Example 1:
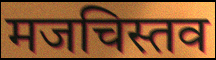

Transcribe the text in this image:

मजचिस्तव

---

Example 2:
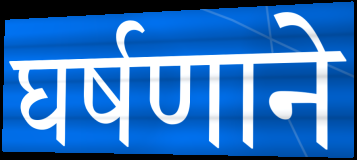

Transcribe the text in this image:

घर्षणाने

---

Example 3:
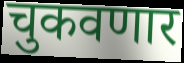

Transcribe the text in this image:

चुकवणार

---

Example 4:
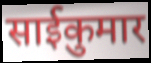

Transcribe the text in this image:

साईकुमार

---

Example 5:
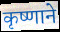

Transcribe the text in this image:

कृष्णाने